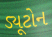
ડ્યૂટોન